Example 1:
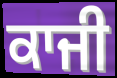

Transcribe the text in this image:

ਕਾਜੀ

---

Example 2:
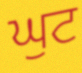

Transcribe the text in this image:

ਘੁਟ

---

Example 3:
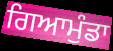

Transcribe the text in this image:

ਗਿਆਮੁੰਡਾ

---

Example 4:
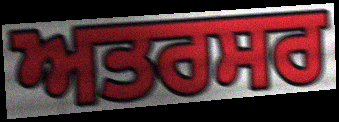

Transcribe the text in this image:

ਅਤਰਸਰ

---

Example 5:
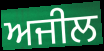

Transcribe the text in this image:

ਅਜੀਲ